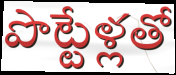
పొట్టేళ్లతో